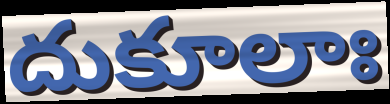
దుకూలాః